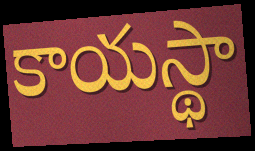
కాయస్థా